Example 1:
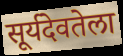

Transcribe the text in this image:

सूर्यदेवतेला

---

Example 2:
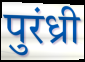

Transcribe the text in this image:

पुरंध्री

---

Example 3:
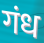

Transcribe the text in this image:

गंध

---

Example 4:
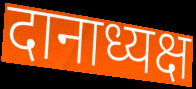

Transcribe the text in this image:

दानाध्यक्ष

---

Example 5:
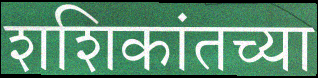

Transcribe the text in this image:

शशिकांतच्या